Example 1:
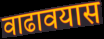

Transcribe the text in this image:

वाढावयास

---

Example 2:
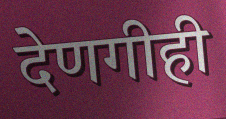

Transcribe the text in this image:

देणगीही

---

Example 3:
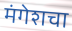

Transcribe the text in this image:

मंगेशचा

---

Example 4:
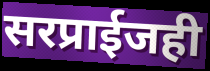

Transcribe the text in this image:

सरप्राईजही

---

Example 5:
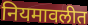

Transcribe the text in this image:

नियमावलीत